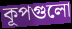
কূপগুলো